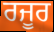
ਰਜੂਰ